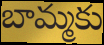
బామ్మకు